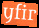
yfir